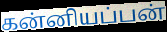
கன்னியப்பன்